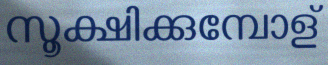
സൂക്ഷിക്കുമ്പോള്